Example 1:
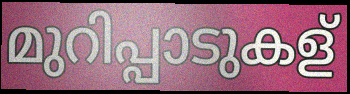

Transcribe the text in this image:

മുറിപ്പാടുകള്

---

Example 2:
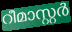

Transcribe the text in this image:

റീമാസ്റ്റർ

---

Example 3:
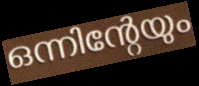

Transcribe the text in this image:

ഒന്നിന്റേയും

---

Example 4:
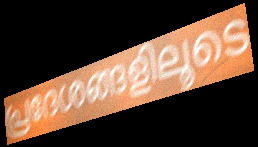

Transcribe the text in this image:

പ്രദേശങ്ങളിലൂടെ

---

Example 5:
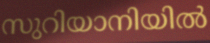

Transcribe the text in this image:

സുറിയാനിയിൽ